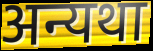
अन्यथा